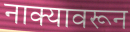
नाक्यावरून